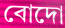
বোদো